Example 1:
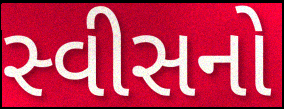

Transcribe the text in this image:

સ્વીસનો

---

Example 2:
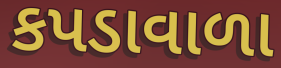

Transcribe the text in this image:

કપડાવાળા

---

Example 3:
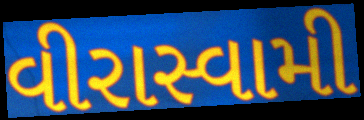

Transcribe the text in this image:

વીરાસ્વામી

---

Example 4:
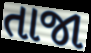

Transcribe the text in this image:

તાજા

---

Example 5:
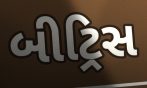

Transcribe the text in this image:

બીટ્રિસ